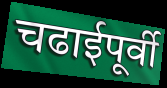
चढाईपूर्वी